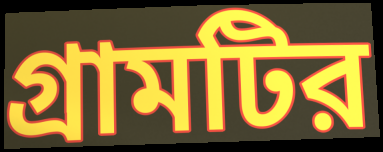
গ্রামটির